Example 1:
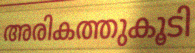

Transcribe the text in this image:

അരികത്തുകൂടി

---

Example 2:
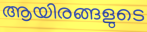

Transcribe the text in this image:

ആയിരങ്ങളുടെ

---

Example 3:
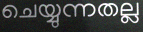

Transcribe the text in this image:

ചെയ്യുന്നതല്ല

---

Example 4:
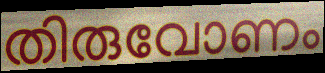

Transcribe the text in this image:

തിരുവോണം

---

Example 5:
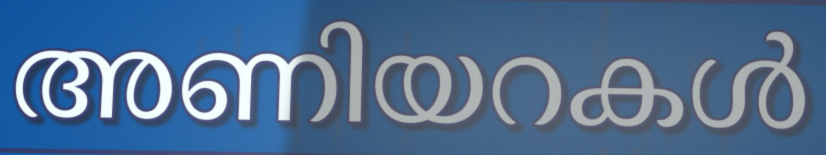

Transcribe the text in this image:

അണിയറകൾ